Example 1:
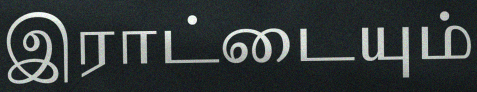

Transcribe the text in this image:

இராட்டையும்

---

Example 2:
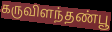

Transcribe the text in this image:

கருவிளந்தண்பூ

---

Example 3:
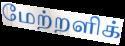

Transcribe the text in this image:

மேற்றளிக்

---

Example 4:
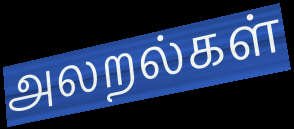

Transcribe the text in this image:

அலறல்கள்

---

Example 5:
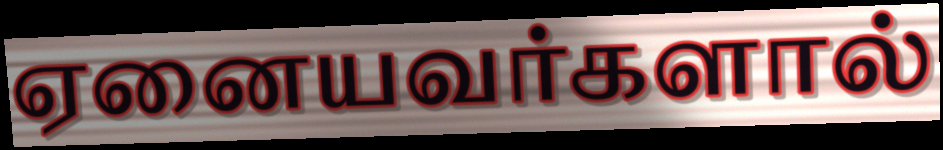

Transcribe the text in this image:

ஏனையவர்களால்